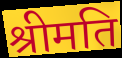
श्रीमति